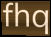
fhq